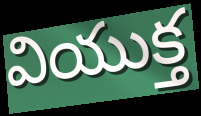
వియుక్త